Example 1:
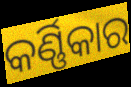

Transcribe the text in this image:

କର୍ଣ୍ଣିକାର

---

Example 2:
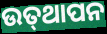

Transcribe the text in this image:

ଉତ୍‌ଥାପନ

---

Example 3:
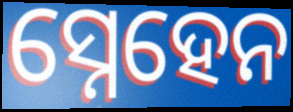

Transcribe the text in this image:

ସ୍ନେହେନ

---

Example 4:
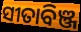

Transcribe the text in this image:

ସୀତାବିଞ୍ଜ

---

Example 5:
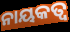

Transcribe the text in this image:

ନାୟକତ୍ୱ